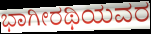
ಭಾಗೀರಥಿಯವರ